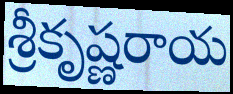
శ్రీకృష్ణరాయ